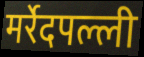
मर्रेदपल्ली